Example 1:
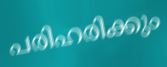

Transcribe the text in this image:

പരിഹരിക്കും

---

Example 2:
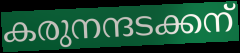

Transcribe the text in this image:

കരുനന്ദടക്കന്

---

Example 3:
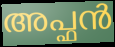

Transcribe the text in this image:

അപ്ഫൻ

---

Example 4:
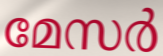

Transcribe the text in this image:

മേസർ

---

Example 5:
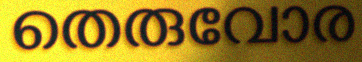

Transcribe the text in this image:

തെരുവോര